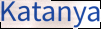
Katanya